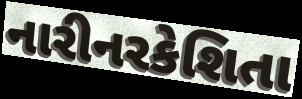
નારીનરકેશિતા